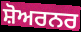
ਸ਼ੋਅਰਨਰ